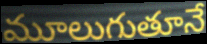
మూలుగుతూనే